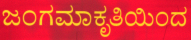
ಜಂಗಮಾಕೃತಿಯಿಂದ